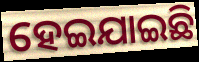
ହେଇଯାଇଛି